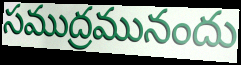
సముద్రమునందు